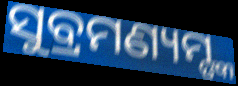
ସୁବ୍ରମଣ୍ୟମ୍ଙ୍କ